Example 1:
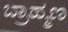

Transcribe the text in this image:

ಬ್ರಾಹ್ಮಣ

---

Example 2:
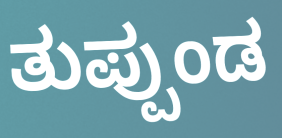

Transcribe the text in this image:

ತುಪ್ಪುಂಡ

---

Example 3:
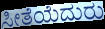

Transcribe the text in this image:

ಸೀತೆಯೆದುರು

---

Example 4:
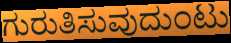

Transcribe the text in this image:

ಗುರುತಿಸುವುದುಂಟು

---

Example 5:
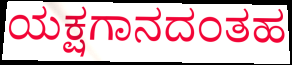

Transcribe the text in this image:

ಯಕ್ಷಗಾನದಂತಹ